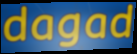
dagad